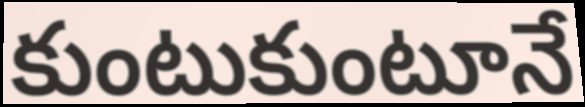
కుంటుకుంటూనే